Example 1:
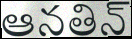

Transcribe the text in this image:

ఆనతిన్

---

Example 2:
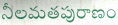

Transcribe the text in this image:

నీలమతపురాణం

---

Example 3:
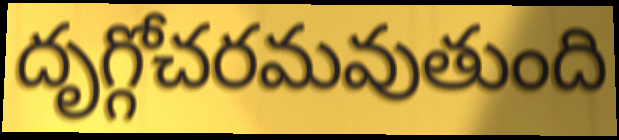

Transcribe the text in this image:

దృగ్గోచరమవుతుంది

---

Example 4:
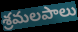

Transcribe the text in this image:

శ్రమలపాలు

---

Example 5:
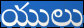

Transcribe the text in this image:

యులు